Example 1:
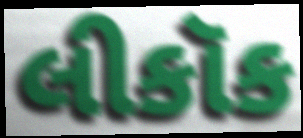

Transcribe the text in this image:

લીકૉક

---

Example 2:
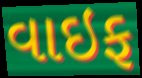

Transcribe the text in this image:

વાઇફ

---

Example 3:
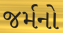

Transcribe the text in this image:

જર્મનો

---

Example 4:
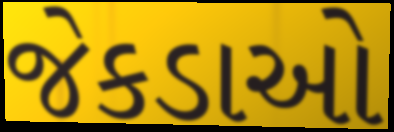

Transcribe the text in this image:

જેકડાઓ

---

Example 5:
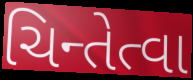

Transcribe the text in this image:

ચિન્તેત્વા